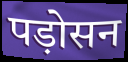
पड़ोसन